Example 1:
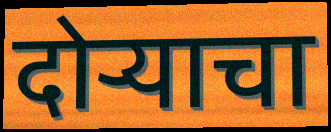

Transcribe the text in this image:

दोर्‍याचा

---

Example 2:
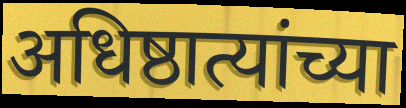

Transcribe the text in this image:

अधिष्ठात्यांच्या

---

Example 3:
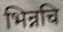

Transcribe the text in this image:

भिन्नचि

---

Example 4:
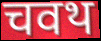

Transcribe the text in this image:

चवथ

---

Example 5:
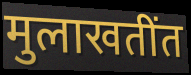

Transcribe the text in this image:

मुलाखतींत